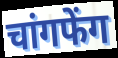
चांगफेंग